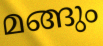
മങ്ങും